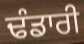
ਢੰਡਾਰੀ